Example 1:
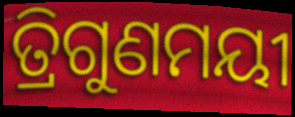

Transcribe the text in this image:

ତ୍ରିଗୁଣମୟୀ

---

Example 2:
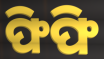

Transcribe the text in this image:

ଫିଫି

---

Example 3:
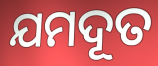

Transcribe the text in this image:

ଯମଦୂତ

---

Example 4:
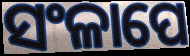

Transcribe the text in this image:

ସଂଳାପେ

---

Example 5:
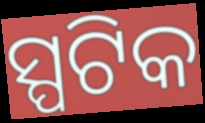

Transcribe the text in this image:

ସ୍ପଟିକ